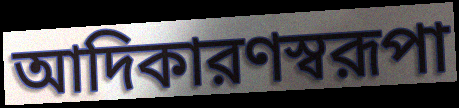
আদিকারণস্বরূপা